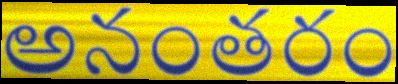
అనంతరం